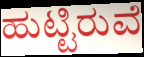
ಹುಟ್ಟಿರುವೆ